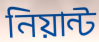
নিয়ান্ট